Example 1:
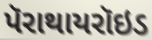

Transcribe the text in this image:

પૅરાથાયરૉઇડ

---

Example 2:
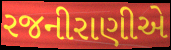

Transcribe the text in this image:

રજનીરાણીએ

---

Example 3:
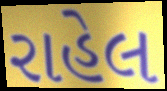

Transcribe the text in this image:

રાહેલ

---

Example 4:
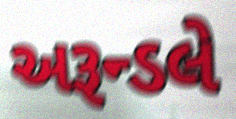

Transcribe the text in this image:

અરૂન્ડલે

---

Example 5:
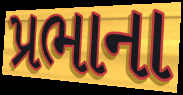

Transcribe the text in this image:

પ્રભાના